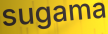
sugama